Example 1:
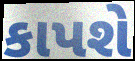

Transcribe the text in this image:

કાપશે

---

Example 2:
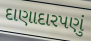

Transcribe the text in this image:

દાણાદારપણું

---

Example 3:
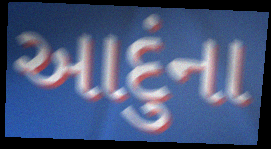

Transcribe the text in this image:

આદુંના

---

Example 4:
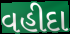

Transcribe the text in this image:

વહીદા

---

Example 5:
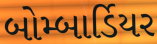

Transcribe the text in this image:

બોમ્બાર્ડિયર